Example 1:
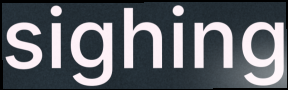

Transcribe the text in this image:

sighing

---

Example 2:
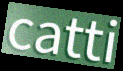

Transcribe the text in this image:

catti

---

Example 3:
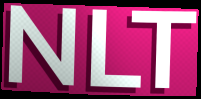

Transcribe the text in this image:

NLT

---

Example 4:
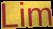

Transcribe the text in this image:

Lim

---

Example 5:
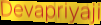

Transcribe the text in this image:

Devapriyaji